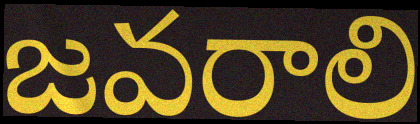
జవరాలి